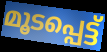
മൂടപ്പെട്ട്